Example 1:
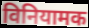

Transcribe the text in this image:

विनियामक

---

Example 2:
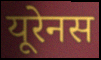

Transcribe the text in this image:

यूरेनस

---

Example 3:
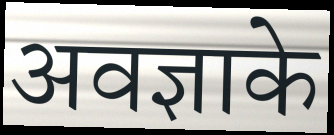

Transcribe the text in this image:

अवज्ञाके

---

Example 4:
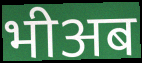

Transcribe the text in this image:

भीअब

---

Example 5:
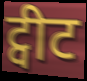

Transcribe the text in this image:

ट्वीट